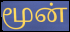
மூன்